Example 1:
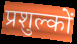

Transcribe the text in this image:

प्रशुल्कों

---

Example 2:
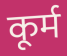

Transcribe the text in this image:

कूर्म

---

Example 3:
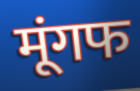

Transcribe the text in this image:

मूंगफ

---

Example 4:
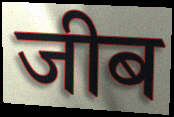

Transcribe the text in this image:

जीब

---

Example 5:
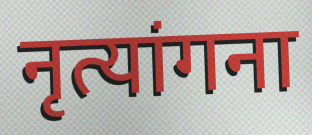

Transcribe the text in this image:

नृत्यांगना